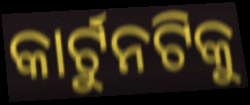
କାର୍ଟୁନଟିକୁ